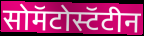
सोमॅटोस्टॅटीन